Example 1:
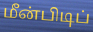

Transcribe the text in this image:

மீன்பிடிப்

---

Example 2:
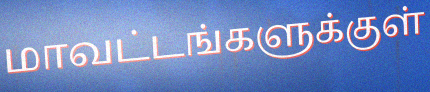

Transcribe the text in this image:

மாவட்டங்களுக்குள்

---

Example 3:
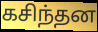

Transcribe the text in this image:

கசிந்தன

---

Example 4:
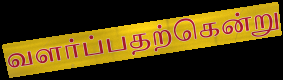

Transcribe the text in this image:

வளர்ப்பதற்கென்று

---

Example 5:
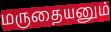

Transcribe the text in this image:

மருதையனும்